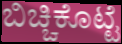
ಬಿಚ್ಚಿಕೊಟ್ಟೆ